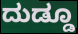
ದುಡ್ಡೂ